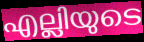
എല്ലിയുടെ